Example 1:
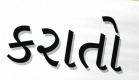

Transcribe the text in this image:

કરાતો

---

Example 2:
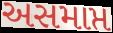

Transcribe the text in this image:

અસમાપ્ત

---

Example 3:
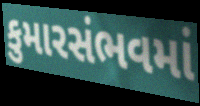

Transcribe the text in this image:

કુમારસંભવમાં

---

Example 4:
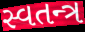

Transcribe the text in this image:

સ્વતન્ત્ર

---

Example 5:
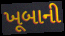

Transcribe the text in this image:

ખૂબાની